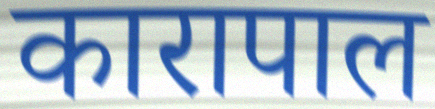
कारापाल